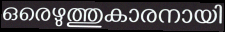
ഒരെഴുത്തുകാരനായി